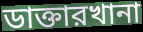
ডাক্তারখানা